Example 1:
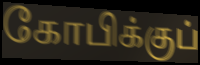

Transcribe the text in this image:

கோபிக்குப்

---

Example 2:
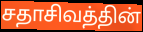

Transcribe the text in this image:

சதாசிவத்தின்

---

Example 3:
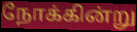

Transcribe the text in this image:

நோக்கின்று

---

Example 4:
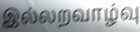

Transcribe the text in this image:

இல்லறவாழ்வு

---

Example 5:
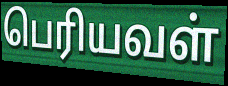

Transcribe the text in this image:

பெரியவள்